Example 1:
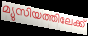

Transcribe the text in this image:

മ്യുസിയത്തിലേക്ക്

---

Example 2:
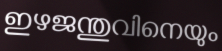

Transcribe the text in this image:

ഇഴജന്തുവിനെയും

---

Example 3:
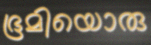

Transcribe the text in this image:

ഭൂമിയൊരു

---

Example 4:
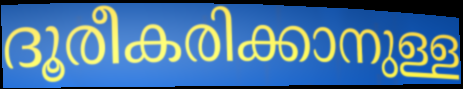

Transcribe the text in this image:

ദൂരീകരിക്കാനുള്ള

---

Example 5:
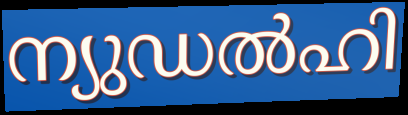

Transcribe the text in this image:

ന്യുഡൽഹി